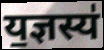
य॒ज्ञस्य॑